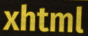
xhtml